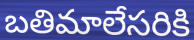
బతిమాలేసరికి